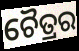
ଚୈତ୍ରର